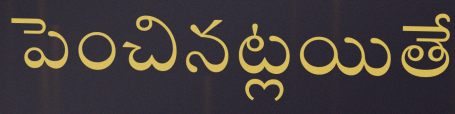
పెంచినట్లయితే